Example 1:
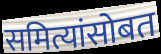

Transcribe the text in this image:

समित्यांसोबत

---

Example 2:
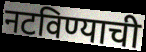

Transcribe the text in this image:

नटविण्याची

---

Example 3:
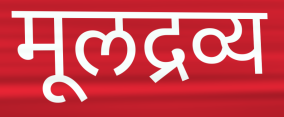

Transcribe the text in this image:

मूलद्रव्य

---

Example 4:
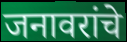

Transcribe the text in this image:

जनावरांचे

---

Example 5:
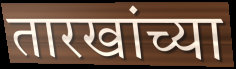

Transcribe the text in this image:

तारखांच्या